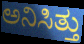
ಅನಿಸಿತ್ತು